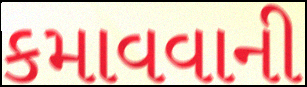
કમાવવાની